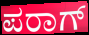
ಪರಾಗ್